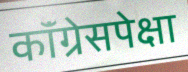
कॉंग्रेसपेक्षा